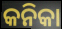
କନିକା